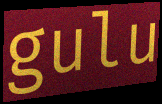
gulu